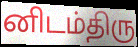
னிடம்திரு